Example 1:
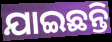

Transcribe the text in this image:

ଯାଇଛନ୍ତି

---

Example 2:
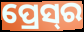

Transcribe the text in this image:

ପ୍ରେସ୍‌ର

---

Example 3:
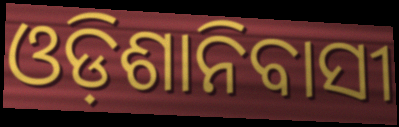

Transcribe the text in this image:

ଓଡ଼ିଶାନିବାସୀ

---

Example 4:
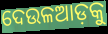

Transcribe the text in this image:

ଦେଉଳଆଡ଼କୁ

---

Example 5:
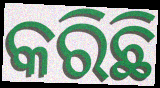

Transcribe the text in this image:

କରିଛି